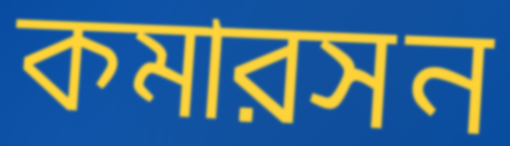
কমারসন